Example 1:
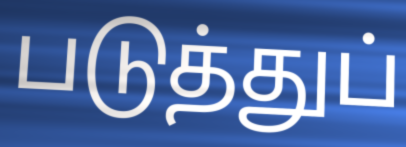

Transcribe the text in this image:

படுத்துப்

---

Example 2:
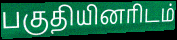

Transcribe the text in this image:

பகுதியினரிடம்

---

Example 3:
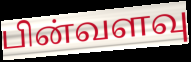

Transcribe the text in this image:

பின்வளவு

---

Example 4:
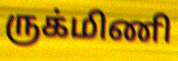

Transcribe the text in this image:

ருக்மிணி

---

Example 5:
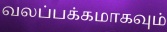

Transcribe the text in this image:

வலப்பக்கமாகவும்